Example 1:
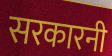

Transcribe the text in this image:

सरकारनी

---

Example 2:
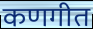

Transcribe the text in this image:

कणगीत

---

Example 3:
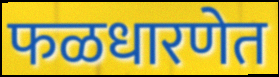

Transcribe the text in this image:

फळधारणेत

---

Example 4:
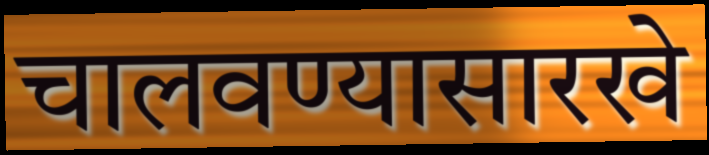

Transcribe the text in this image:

चालवण्यासारखे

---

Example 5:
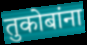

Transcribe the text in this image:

तुकोबांना